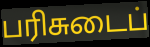
பரிசுடைப்